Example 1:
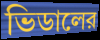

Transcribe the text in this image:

ভিডালের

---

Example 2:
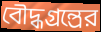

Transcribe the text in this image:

বৌদ্ধগ্রন্ত্রের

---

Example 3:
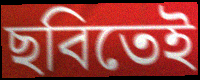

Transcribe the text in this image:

ছবিতেই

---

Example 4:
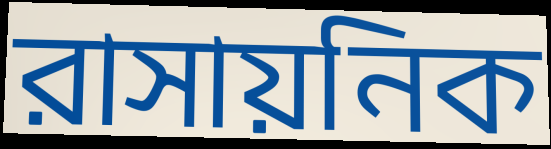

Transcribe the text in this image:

রাসায়নিক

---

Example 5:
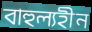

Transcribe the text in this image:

বাহুল্যহীন